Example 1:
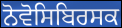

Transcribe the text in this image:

ਨੋਵੋਸਿਬਿਰਸਕ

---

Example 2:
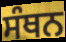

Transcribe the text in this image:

ਸੰਥਨ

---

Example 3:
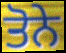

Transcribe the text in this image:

ਤੋਨੇ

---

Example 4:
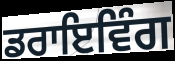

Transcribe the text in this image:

ਡਰਾਇਵਿੰਗ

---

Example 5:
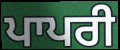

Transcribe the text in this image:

ਪਾਪਰੀ